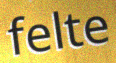
felte